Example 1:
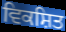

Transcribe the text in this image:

ਵਿਕਸ਼ਿਤ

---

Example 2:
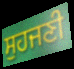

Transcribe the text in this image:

ਸੁਹਜਣੀ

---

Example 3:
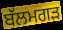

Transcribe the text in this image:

ਬੱਲਮਗੜ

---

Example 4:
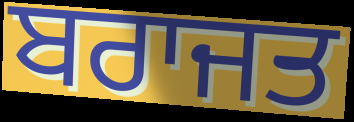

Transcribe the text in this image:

ਬਰਾਜਤ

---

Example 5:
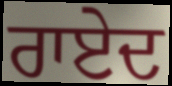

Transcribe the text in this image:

ਰਾਏਦ